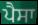
ਪੈਸਾ